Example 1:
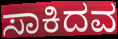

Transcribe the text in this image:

ಸಾಕಿದವ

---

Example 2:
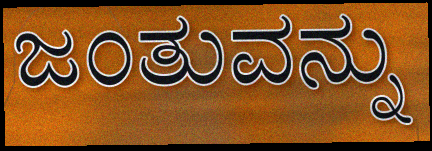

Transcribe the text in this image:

ಜಂತುವನ್ನು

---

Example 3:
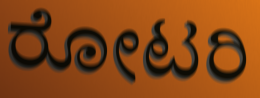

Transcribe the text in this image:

ರೋಟರಿ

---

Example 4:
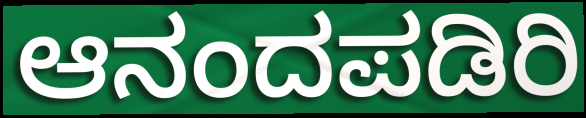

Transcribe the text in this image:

ಆನಂದಪಡಿರಿ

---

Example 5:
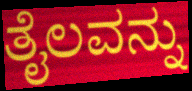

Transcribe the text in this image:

ತೈಲವನ್ನು